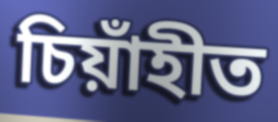
চিয়াঁহীত